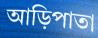
আড়িপাতা